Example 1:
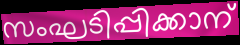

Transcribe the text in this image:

സംഘടിപ്പിക്കാന്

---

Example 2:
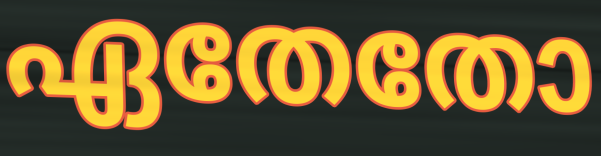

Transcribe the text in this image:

ഏതേതോ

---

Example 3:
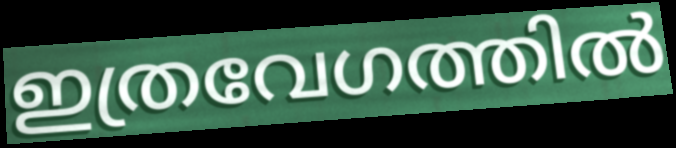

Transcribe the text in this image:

ഇത്രവേഗത്തിൽ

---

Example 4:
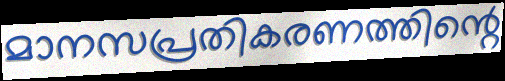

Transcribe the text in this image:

മാനസപ്രതികരണത്തിന്റെ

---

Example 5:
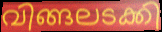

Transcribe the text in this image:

വിങ്ങലടക്കി